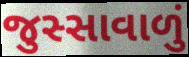
જુસ્સાવાળું